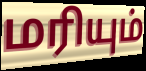
மரியும்